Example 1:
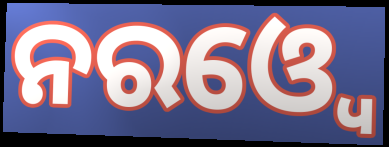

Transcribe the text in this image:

ନରଓ୍ୱେ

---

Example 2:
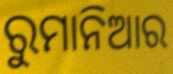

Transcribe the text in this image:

ରୁମାନିଆର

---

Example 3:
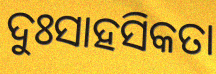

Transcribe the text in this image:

ଦୁଃସାହସିକତା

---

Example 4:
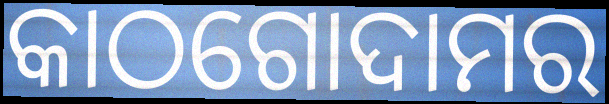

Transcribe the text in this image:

କାଠଗୋଦାମର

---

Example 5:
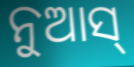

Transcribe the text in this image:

ନୁଆସ୍